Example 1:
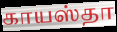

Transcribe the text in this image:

காயஸ்தா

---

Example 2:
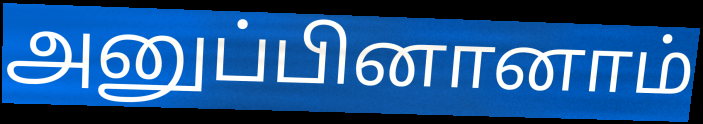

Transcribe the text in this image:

அனுப்பினானாம்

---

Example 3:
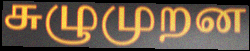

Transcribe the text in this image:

சுழுமுறன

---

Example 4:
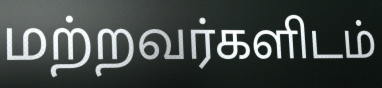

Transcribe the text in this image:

மற்றவர்களிடம்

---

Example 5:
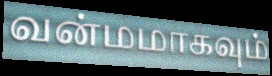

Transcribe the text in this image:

வன்மமாகவும்